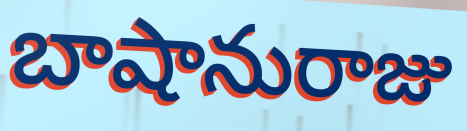
బాషానురాజు